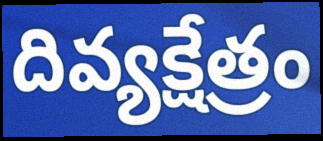
దివ్యక్షేత్రం